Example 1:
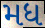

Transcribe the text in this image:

મધ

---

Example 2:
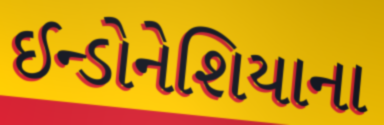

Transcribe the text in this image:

ઈન્ડોનેશિયાના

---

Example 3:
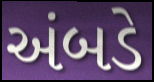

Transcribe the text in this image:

અંબડે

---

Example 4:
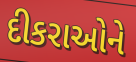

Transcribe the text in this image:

દીકરાઓને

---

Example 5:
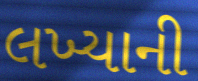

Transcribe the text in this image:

લખ્યાની